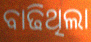
ବାଢିଥିଲା